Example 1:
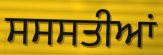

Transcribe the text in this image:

ਸਸਸਤੀਆਂ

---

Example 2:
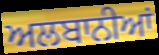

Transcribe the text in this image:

ਅਲਬਾਨੀਆਂ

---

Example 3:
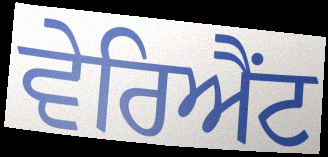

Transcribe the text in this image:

ਵੇਰਿਐਂਟ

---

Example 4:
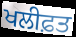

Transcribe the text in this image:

ਖਲੀਫ਼ਤ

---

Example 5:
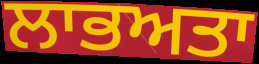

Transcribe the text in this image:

ਲਾਭਅਤਾ